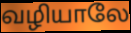
வழியாலே